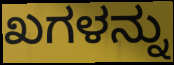
ಖಗಳನ್ನು